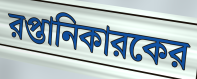
রপ্তানিকারকের